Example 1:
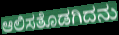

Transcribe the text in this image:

ಆಲಿಸತೊಡಗಿದನು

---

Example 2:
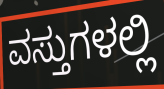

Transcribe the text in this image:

ವಸ್ತುಗಳಲ್ಲಿ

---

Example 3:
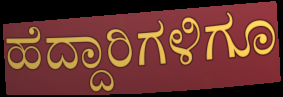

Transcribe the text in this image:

ಹೆದ್ದಾರಿಗಳಿಗೂ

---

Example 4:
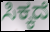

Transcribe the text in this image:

ಸಿಕ್ಕದೆ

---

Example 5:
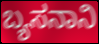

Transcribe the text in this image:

ಬ್ಯಸನಾನಿ